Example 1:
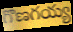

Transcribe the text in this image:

గొణగయ్య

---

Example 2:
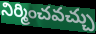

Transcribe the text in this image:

నిర్మించవచ్చు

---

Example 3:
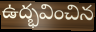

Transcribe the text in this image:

ఉద్భవించిన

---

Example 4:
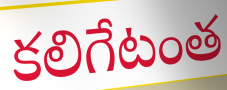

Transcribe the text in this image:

కలిగేటంత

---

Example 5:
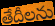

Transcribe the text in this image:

తేదీలను